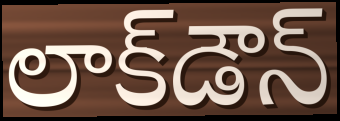
లాక్‌డౌన్